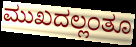
ಮುಖದಲ್ಲಂತೂ